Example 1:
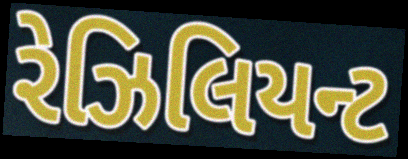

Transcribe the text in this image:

રેઝિલિયન્ટ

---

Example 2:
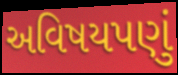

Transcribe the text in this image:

અવિષયપણું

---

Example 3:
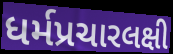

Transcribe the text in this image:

ધર્મપ્રચારલક્ષી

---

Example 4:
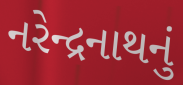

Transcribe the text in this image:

નરેન્દ્રનાથનું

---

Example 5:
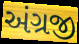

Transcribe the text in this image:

અંગ્રજી